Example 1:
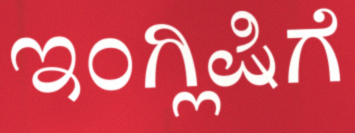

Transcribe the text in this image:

ಇಂಗ್ಲಿಷಿಗೆ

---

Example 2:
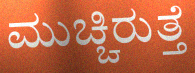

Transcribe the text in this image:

ಮುಚ್ಚಿರುತ್ತೆ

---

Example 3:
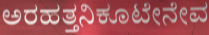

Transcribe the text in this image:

ಅರಹತ್ತನಿಕೂಟೇನೇವ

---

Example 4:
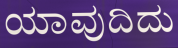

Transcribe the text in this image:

ಯಾವುದಿದು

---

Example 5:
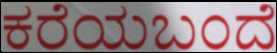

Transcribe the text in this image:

ಕರೆಯಬಂದೆ